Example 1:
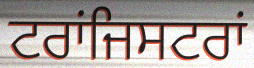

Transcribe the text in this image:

ਟਰਾਂਜਿਸਟਰਾਂ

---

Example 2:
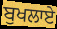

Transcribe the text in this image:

ਬੁਖਲਾਏ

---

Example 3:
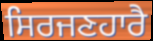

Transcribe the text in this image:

ਸਿਰਜਣਹਾਰੈ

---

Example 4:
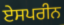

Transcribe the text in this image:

ਏਸਪਰੀਨ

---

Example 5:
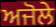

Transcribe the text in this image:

ਅਜੋਲੇ